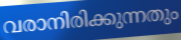
വരാനിരിക്കുന്നതും